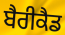
ਬੈਰੀਕੈਡ